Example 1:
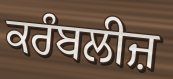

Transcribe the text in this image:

ਕਰੰਬਲੀਜ਼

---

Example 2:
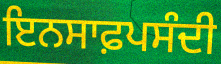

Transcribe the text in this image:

ਇਨਸਾਫ਼ਪਸੰਦੀ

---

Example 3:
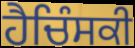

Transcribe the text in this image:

ਹੈਚਿੰਸਕੀ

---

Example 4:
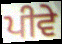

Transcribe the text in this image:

ਪੀਵੇ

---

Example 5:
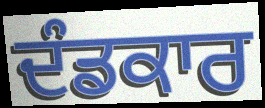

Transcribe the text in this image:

ਦੰਡਕਾਰ